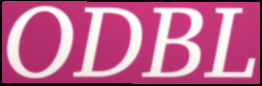
ODBL